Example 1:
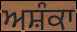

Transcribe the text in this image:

ਅਸ਼ੰਕਾ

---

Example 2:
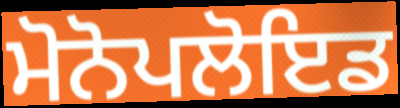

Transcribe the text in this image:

ਮੋਨੋਪਲੋਇਡ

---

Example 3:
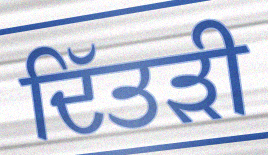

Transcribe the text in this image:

ਦਿੱਤੜੀ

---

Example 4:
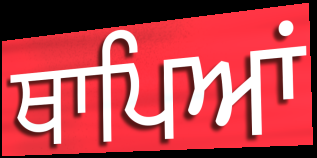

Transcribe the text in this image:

ਥਾਪਿਆਂ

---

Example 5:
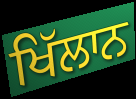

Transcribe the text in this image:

ਖਿੱਲਾਨ